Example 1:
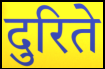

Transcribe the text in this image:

दुरिते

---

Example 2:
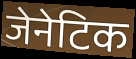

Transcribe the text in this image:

जेनेटिक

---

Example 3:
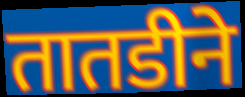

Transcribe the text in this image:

तातडीने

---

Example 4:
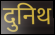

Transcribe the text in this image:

दुनिथ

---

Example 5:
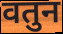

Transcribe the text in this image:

वतुन